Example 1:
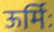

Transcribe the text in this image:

ऊर्मिः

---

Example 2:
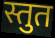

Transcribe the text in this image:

स्तुत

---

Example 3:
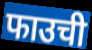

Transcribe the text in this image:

फाउची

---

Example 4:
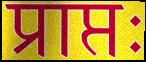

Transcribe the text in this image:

प्राप्तः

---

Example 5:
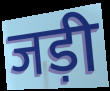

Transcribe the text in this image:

जड़ी